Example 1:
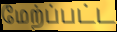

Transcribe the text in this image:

மேற்ப்பட்ட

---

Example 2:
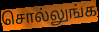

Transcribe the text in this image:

சொல்லுங்க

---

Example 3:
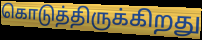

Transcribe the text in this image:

கொடுத்திருக்கிறது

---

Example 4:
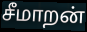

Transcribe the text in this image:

சீமாறன்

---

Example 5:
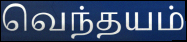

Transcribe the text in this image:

வெந்தயம்